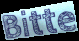
Bitte